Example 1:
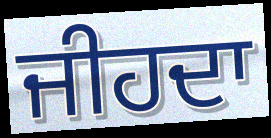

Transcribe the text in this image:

ਜੀਹਦਾ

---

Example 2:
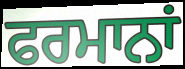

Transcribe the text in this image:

ਫਰਮਾਨਾਂ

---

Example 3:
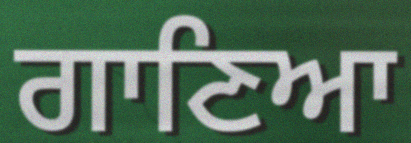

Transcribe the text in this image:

ਗਾਣਿਆ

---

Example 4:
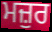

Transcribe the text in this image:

ਮਜ਼ੁਰ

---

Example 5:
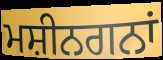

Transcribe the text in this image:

ਮਸ਼ੀਨਗਨਾਂ